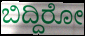
ಬಿದ್ದಿರೋ